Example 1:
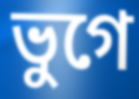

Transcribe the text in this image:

ভুগে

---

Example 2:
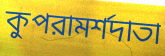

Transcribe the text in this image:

কুপরামর্শদাতা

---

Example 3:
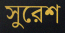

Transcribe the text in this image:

সুরেশ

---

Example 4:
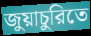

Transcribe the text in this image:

জুয়াচুরিতে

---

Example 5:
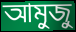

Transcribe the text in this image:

আমুজু